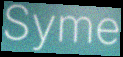
Syme